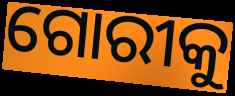
ଗୋରୀକୁ